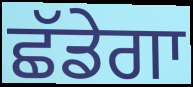
ਛੱਡੇਗਾ